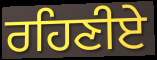
ਰਹਿਣੀਏ